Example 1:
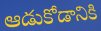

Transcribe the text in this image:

ఆడుకోడానికి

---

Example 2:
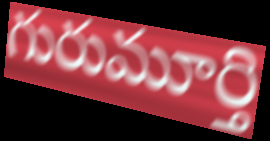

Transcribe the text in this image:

గురుమూర్తి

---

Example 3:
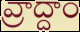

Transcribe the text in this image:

వ్రాద్దాం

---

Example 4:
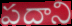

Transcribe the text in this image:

పదాని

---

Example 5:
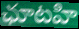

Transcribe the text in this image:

ఛూటహి